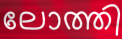
ലോത്തി